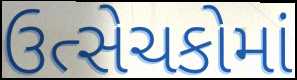
ઉત્સેચકોમાં